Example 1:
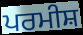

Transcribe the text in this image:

ਪਰਮੀਸ਼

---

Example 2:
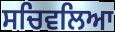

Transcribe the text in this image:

ਸਚਿਵਲਿਆ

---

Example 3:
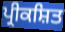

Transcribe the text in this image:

ਪ੍ਰੀਕਸ਼ਿਤ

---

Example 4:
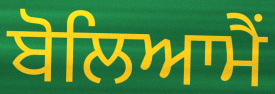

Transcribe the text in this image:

ਬੋਲਿਆਮੈਂ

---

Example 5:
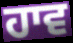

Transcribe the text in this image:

ਹਾਵ